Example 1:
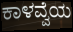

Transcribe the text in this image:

ಕಾಳವ್ವೆಯ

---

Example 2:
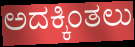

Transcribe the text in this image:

ಅದಕ್ಕಿಂತಲು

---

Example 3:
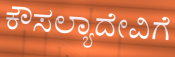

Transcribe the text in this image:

ಕೌಸಲ್ಯಾದೇವಿಗೆ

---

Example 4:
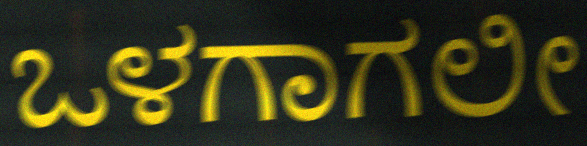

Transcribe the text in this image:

ಒಳಗಾಗಲೀ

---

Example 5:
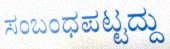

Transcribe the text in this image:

ಸಂಬಂಧಪಟ್ಟದ್ದು